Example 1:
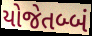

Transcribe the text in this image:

યોજેતબ્બં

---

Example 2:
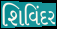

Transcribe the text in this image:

શિવિંદર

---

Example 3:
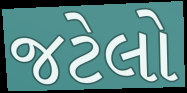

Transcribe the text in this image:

જટેલો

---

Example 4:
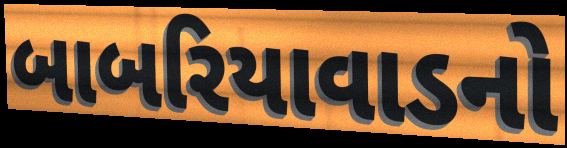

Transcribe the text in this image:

બાબરિયાવાડનો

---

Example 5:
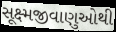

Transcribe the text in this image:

સૂક્ષ્મજીવાણુઓથી